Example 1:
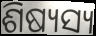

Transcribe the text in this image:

ଶିଷ୍ୟସ୍ୟ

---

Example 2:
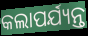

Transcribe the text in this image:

କଲାପର୍ଯ୍ୟନ୍ତ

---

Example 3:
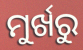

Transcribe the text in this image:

ମୁର୍ଖରୁ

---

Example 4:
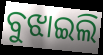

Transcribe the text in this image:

ବୁଝାଇଲି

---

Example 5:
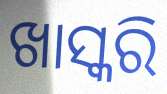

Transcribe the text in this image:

ଖାସ୍କରି